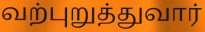
வற்புறுத்துவார்